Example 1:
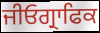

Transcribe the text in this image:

ਜੀਓਗ੍ਰਾਫਿਕ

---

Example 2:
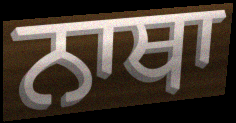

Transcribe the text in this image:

ਨਾਥਾ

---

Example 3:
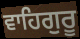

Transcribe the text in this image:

ਵਾਹਿਗੁਰੂ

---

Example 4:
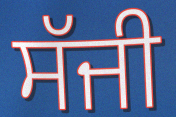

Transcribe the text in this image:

ਸੱਜੀ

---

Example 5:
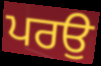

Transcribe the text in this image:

ਪਰਉ